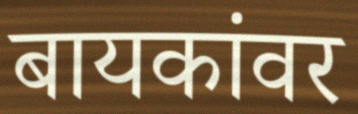
बायकांवर